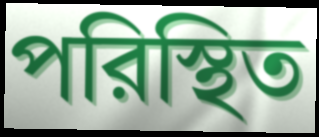
পরিস্থিত